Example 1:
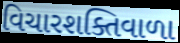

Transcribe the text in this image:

વિચારશક્તિવાળા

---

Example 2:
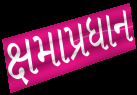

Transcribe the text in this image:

ક્ષમાપ્રધાન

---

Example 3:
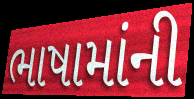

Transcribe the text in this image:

ભાષામાંની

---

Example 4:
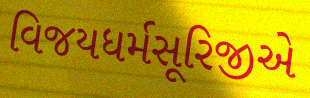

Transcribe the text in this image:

વિજયધર્મસૂરિજીએ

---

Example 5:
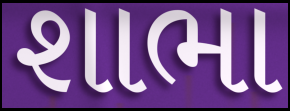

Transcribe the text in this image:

શાભા